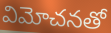
విమోచనతో